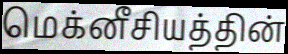
மெக்னீசியத்தின்